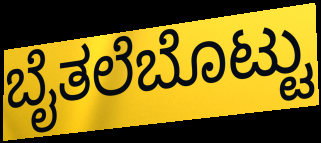
ಬೈತಲೆಬೊಟ್ಟು